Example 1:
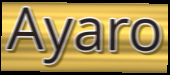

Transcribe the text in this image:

Ayaro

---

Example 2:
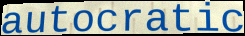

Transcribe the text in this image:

autocratic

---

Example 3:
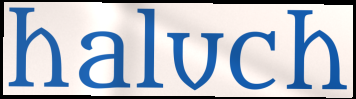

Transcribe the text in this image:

haluch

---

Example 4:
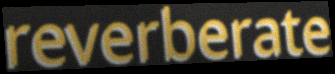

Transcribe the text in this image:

reverberate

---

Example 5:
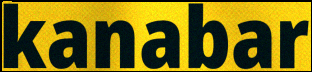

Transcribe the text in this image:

kanabar